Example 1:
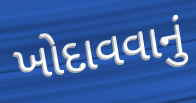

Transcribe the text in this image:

ખોદાવવાનું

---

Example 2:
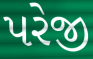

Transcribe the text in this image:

પરેજી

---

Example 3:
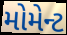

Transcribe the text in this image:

મોમેન્ટ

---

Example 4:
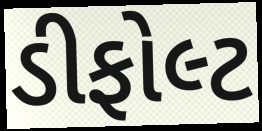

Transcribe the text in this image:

ડીફોલ્ટ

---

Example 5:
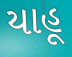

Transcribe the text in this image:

યાહૂ